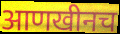
आणखीनच